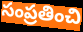
సంప్రతించి